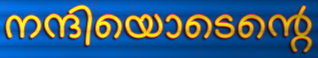
നന്ദിയൊടെന്റെ